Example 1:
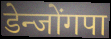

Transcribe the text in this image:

डेन्जोंगपा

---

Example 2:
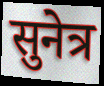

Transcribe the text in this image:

सुनेत्र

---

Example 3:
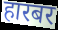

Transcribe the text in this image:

हारबर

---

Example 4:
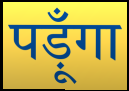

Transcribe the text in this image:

पड़ूँगा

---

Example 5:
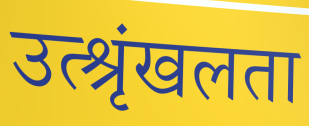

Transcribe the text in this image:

उत्श्रृंखलता